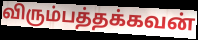
விரும்பத்தக்கவன்